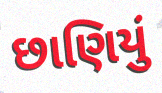
છાણિયું